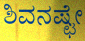
ಶಿವನಷ್ಟೇ